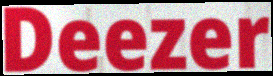
Deezer